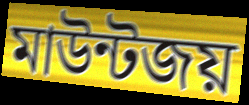
মাউন্টজয়